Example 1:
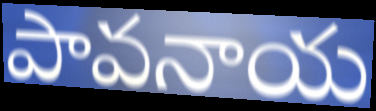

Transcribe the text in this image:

పావనాయ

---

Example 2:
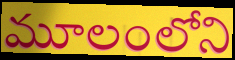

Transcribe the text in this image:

మూలంలోని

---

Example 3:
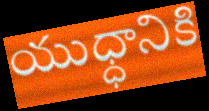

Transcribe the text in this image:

యుధ్ధానికి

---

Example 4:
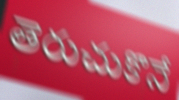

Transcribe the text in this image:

తెరుచుకొనే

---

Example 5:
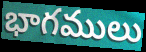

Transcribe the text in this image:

భాగములు